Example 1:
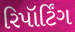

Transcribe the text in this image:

રિપૉર્ટિંગ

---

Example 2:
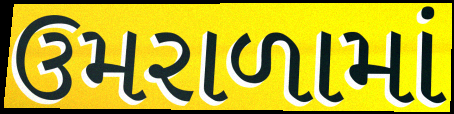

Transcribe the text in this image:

ઉમરાળામાં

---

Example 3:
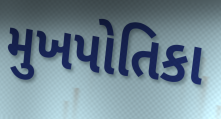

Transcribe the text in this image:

મુખપોતિકા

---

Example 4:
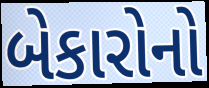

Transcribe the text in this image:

બેકારોનો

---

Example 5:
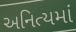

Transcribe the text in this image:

અનિત્યમાં